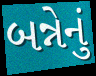
બન્નેનું